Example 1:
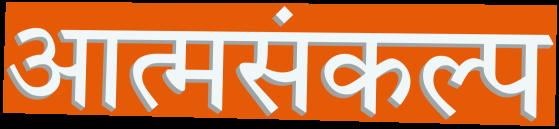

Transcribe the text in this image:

आत्मसंकल्प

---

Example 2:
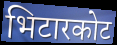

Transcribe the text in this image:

भिटारकोट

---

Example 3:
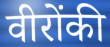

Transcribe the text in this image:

वीरोंकी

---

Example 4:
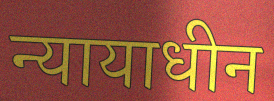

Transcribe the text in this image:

न्यायाधीन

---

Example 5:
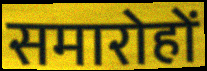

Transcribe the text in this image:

समारोहों